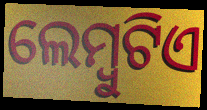
ଲେମ୍ବୁଟିଏ